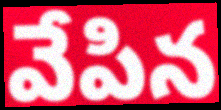
వేపిన